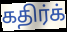
கதிர்க்